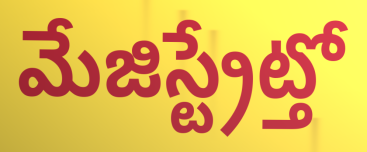
మేజిస్ట్రేట్తో